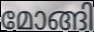
മോങ്ങി